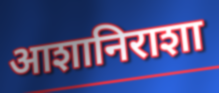
आशानिराशा